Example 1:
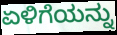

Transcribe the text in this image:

ಏಳಿಗೆಯನ್ನು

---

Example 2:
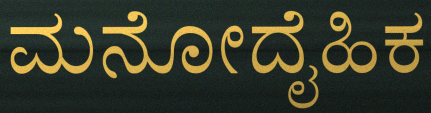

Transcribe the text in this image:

ಮನೋದೈಹಿಕ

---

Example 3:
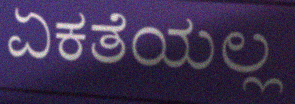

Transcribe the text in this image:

ಏಕತೆಯಲ್ಲ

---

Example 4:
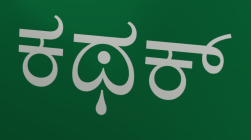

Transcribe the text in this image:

ಕಥಕ್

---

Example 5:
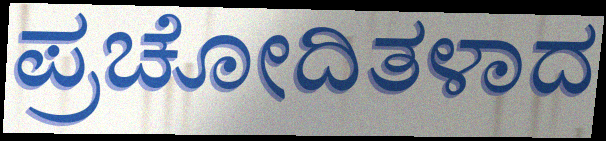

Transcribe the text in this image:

ಪ್ರಚೋದಿತಳಾದ